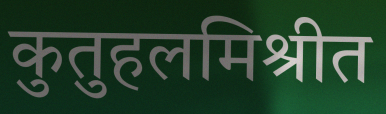
कुतुहलमिश्रीत